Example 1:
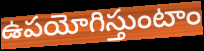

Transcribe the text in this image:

ఉపయోగిస్తుంటాం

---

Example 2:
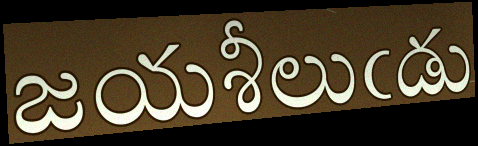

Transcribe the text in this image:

జయశీలుఁడు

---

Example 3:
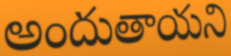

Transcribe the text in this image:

అందుతాయని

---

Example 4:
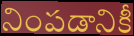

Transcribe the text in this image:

నింపడానికీ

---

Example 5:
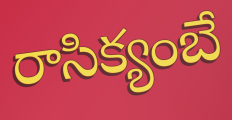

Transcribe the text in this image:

రాసిక్యంబే